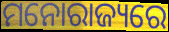
ମନୋରାଜ୍ୟରେ